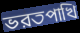
ভরতপাখি